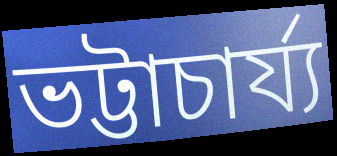
ভট্টাচাৰ্য্য